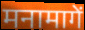
मनामागें